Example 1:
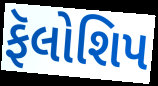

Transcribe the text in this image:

ફૅલોશિપ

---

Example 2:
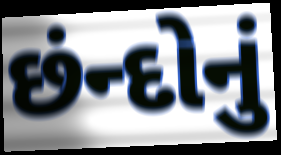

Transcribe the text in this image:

છંન્દોનું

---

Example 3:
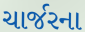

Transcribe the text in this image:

ચાર્જરના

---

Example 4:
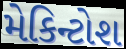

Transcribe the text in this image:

મેકિન્ટોશ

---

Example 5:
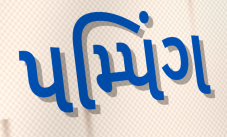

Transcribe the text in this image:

પમ્પિંગ